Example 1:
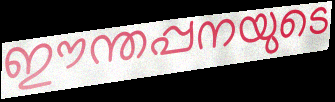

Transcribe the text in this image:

ഈന്തപ്പനയുടെ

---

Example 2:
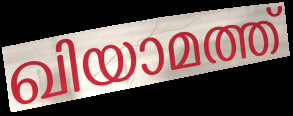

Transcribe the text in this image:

ഖിയാമത്ത്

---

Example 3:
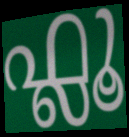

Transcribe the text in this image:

ഫ്ലൂ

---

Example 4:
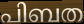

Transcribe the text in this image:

പിബത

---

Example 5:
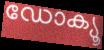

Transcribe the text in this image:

ഡോക്യൂ